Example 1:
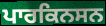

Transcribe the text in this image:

ਪਾਰਕਿਨਸਨ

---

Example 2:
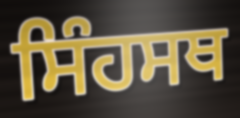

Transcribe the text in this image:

ਸਿੰਹਸਥ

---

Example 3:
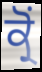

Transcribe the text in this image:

ਕ੍ਰੋਂ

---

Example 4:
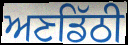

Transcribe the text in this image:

ਅਣਡਿੱਠੀ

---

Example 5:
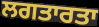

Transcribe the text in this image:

ਲਗਤਾਰਤਾ